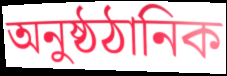
অনুষ্ঠঠানিক